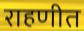
राहणीत